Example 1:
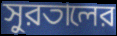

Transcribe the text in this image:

সুরতালের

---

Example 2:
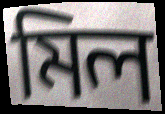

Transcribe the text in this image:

মিল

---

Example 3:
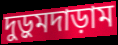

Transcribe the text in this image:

দুড়ুমদাড়াম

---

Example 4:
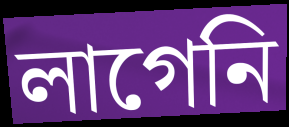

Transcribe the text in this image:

লাগেনি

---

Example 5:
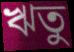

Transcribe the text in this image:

ঋতু